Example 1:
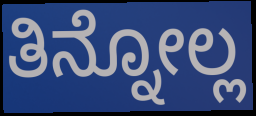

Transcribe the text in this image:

ತಿನ್ನೋಲ್ಲ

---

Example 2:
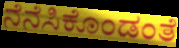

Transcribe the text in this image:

ನೆನೆಸಿಕೊಂಡಂತೆ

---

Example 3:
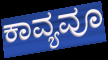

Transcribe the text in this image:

ಕಾವ್ಯವೂ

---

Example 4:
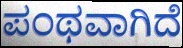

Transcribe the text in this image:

ಪಂಥವಾಗಿದೆ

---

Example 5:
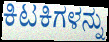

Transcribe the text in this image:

ಕಿಟಕಿಗಳನ್ನು